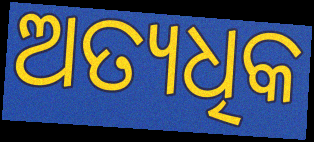
ଅତ୍ୟଧିକ